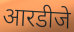
आरडीजे